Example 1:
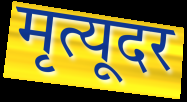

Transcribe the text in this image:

मृत्यूदर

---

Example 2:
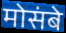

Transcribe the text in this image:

मोसंबे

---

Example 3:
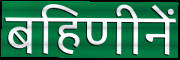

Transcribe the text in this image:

बहिणीनें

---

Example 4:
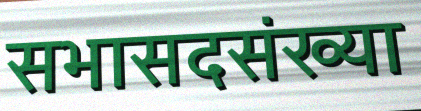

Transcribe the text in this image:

सभासदसंख्या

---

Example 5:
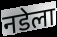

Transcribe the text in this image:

नडेला